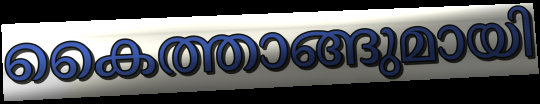
കൈത്താങ്ങുമായി